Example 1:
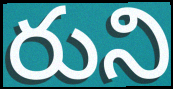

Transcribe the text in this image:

రుని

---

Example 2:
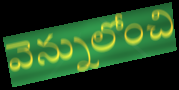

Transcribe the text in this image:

వెన్నులోంచి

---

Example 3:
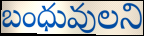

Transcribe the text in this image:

బంధువులని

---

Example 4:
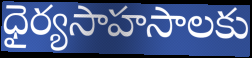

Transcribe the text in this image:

ధైర్యసాహసాలకు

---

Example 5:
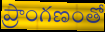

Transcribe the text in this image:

ప్రాంగణంతో